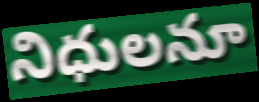
నిధులనూ